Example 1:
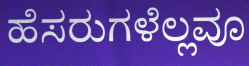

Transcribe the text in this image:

ಹೆಸರುಗಳೆಲ್ಲವೂ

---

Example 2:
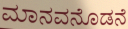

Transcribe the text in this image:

ಮಾನವನೊಡನೆ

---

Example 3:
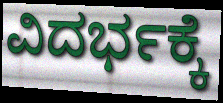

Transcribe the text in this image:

ವಿದರ್ಭಕ್ಕೆ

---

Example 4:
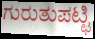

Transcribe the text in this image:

ಗುರುತುಪಟ್ಟಿ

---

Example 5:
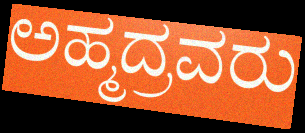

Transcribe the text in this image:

ಅಹ್ಮದ್ರವರು